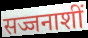
सज्जनाशीं